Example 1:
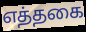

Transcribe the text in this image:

எத்தகை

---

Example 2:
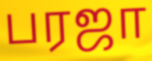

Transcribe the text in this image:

பரஜா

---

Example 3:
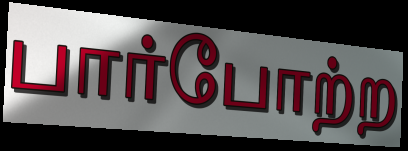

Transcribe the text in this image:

பார்போற்ற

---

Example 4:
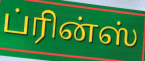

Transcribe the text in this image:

ப்ரின்ஸ்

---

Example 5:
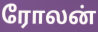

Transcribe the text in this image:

ரோலன்